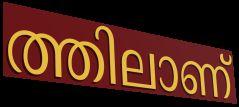
ത്തിലാണ്